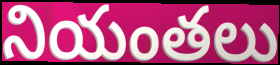
నియంతలు